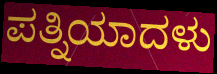
ಪತ್ನಿಯಾದಳು